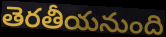
తెరతీయనుంది